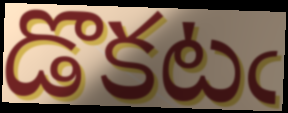
డొకటఁ